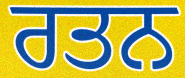
ਰਤਨ